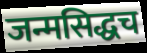
जन्मसिद्धच